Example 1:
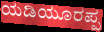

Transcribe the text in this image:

ಯಡಿಯೂರಪ್ಪ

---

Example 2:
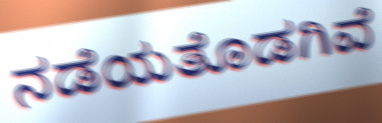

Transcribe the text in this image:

ನಡೆಯತೊಡಗಿವೆ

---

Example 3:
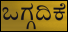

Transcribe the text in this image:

ಒಗ್ಗದಿಕೆ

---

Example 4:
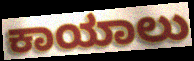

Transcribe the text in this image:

ಕಾಯಾಲು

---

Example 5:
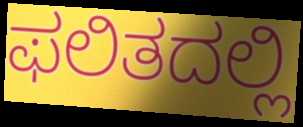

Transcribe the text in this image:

ಫಲಿತದಲ್ಲಿ